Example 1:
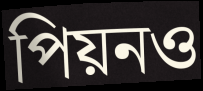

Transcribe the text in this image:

পিয়নও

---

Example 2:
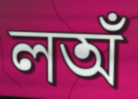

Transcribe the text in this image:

লঅঁ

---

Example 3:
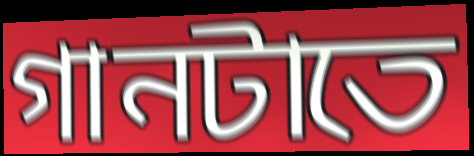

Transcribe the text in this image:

গানটাতে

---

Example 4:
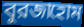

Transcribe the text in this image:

বুরজাহোম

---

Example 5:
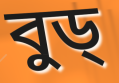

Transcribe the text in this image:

বুড্